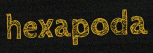
hexapoda